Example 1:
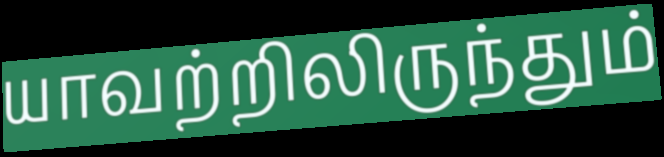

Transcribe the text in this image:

யாவற்றிலிருந்தும்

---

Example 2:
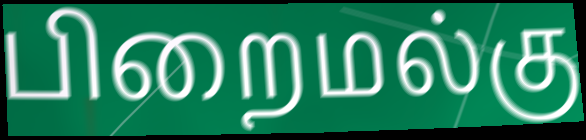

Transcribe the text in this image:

பிறைமல்கு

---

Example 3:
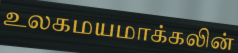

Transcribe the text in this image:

உலகமயமாக்கலின்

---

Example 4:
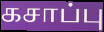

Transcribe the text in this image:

கசாப்பு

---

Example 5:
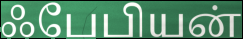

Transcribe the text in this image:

ஃபேபியன்